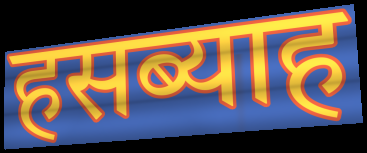
हसब्याह